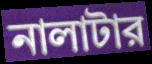
নালাটার